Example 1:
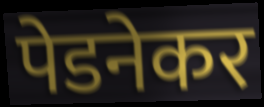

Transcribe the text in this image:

पेडनेकर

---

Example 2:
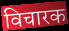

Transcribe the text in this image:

विचारक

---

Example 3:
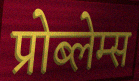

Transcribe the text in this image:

प्रोब्लेम्स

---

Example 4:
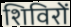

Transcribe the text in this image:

शिविरों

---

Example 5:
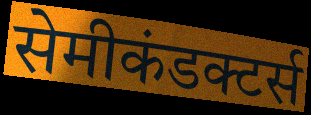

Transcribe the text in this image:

सेमीकंडक्टर्स